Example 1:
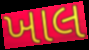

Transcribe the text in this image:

ખાલ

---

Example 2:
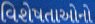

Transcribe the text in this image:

વિશેષતાઓનો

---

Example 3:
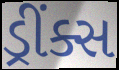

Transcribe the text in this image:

ડ્રીંક્સ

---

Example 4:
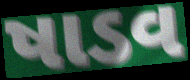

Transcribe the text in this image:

ષાડવ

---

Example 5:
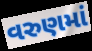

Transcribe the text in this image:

વરુણમાં